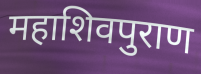
महाशिवपुराण